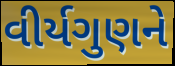
વીર્યગુણને